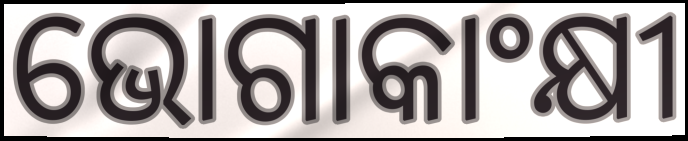
ଭୋଗାକାଂକ୍ଷୀ